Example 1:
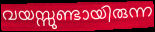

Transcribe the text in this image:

വയസ്സുണ്ടായിരുന്ന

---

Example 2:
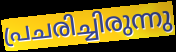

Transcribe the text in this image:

പ്രചരിച്ചിരുന്നു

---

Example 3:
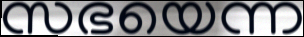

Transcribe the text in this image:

സഭയെന്ന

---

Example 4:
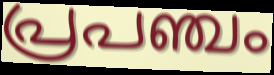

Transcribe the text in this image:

പ്രപഞ്ചം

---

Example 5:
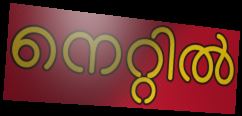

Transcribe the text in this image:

നെറ്റിൽ